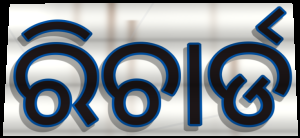
ରିଚାର୍ଡ